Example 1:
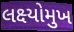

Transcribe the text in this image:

લક્ષ્યોમુખ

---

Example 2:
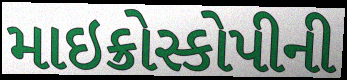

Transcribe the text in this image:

માઇક્રોસ્કોપીની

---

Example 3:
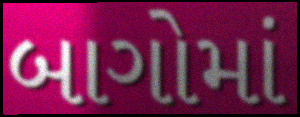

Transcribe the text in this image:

બાગોમાં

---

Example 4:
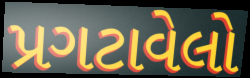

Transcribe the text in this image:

પ્રગટાવેલો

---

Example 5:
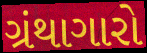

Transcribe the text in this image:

ગ્રંથાગારો